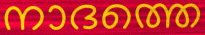
നാദത്തെ